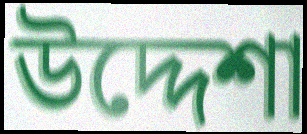
উদ্দেশা